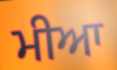
ਮੀਆ